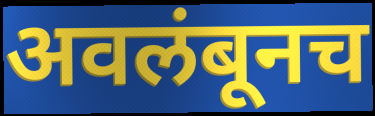
अवलंबूनच